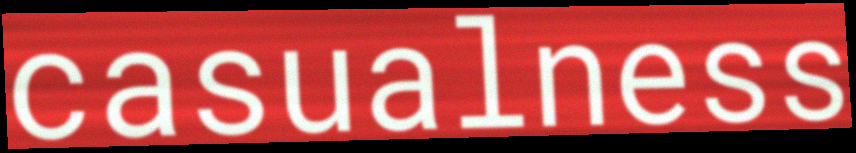
casualness